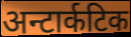
अन्टार्कटिक